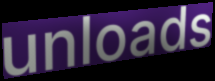
unloads